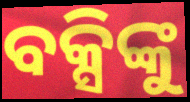
ବକ୍ସିଙ୍କୁ